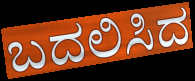
ಬದಲಿಸಿದ